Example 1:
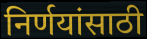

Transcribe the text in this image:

निर्णयांसाठी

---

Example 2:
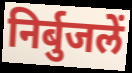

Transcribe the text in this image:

निर्बुजलें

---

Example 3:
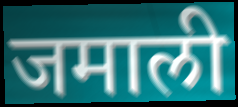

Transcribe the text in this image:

जमाली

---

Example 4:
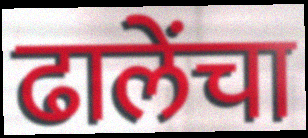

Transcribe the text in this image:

ढालेंचा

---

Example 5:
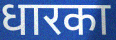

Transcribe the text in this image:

धारका